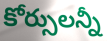
కోర్సులన్నీ